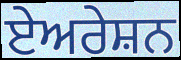
ਏਅਰੇਸ਼ਨ